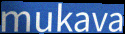
mukava